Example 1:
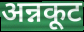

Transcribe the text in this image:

अन्नकूट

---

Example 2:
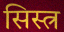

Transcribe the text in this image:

सिस्त्र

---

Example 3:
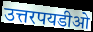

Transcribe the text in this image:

उत्तरपयडीओ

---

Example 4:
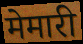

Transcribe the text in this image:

मेमारी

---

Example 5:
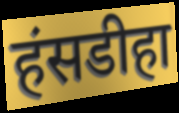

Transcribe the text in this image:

हंसडीहा